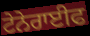
ਟੇਨੇਰਾਈਫ